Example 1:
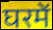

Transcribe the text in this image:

घरमें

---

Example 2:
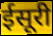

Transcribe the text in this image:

ईसूरी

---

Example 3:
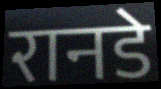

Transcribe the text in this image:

रानडे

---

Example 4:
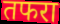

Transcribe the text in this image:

तफरा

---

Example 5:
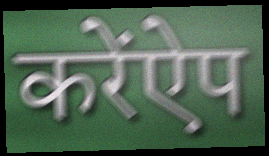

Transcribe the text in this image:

करेंऐप